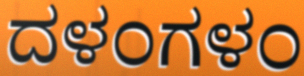
ದಳಂಗಳಂ